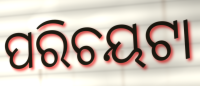
ପରିଚୟଟା